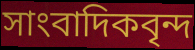
সাংবাদিকবৃন্দ